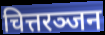
चित्तरञ्जन